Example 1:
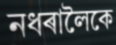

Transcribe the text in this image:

নধৰালৈকে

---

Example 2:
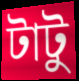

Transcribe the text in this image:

টাটু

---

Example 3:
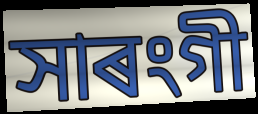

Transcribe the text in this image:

সাৰংগী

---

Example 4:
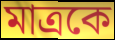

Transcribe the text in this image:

মাত্ৰকে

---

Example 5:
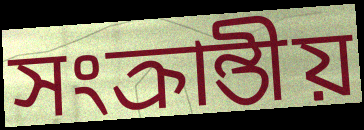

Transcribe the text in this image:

সংক্ৰান্তীয়